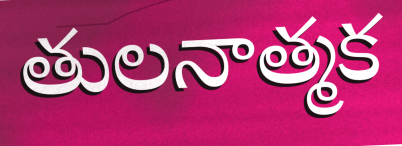
తులనాత్మక